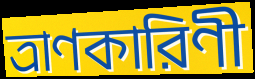
ত্রাণকারিণী